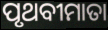
ପୃଥବୀମାତା